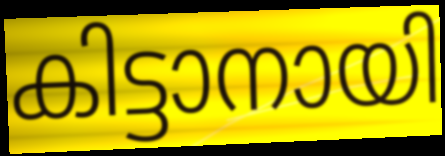
കിട്ടാനായി